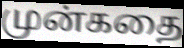
முன்கதை